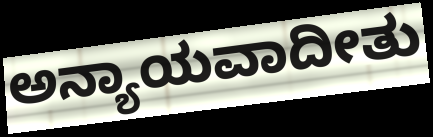
ಅನ್ಯಾಯವಾದೀತು